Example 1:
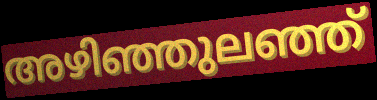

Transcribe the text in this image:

അഴിഞ്ഞുലഞ്ഞ്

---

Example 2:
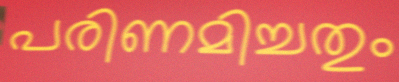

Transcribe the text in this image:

പരിണമിച്ചതും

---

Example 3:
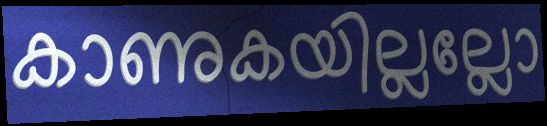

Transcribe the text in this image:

കാണുകയില്ലല്ലോ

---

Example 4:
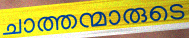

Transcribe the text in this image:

ചാത്തന്മാരുടെ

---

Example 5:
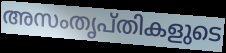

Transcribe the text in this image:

അസംതൃപ്തികളുടെ